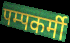
पम्पकर्मी